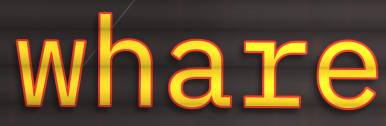
whare